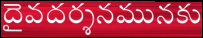
దైవదర్శనమునకు